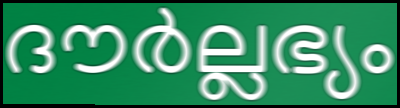
ദൗർല്ലഭ്യം